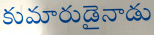
కుమారుడైనాడు